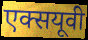
एक्सयूवी